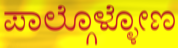
ಪಾಲ್ಗೊಳ್ಳೋಣ